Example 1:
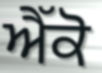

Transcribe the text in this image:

ਐੱਕੋ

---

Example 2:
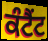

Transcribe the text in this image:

ਕੰਟੈਂਟ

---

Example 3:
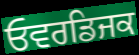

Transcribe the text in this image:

ਓਵਰਡਿਜਕ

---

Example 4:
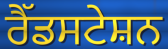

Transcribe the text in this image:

ਰੈੱਡਸਟੇਸ਼ਨ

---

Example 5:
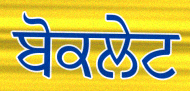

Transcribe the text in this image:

ਬੋਕਲੇਟ